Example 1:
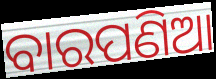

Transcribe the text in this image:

ବାରପଣିଆ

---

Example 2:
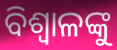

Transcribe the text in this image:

ବିଶ୍ୱାଳଙ୍କୁ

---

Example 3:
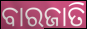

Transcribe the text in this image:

ବାରଜାତି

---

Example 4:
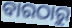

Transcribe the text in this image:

ବାରଠାରୁ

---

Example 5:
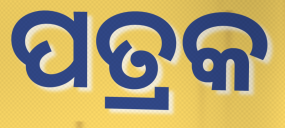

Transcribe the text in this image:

ପତ୍ରକ